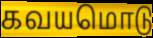
கவயமொடு